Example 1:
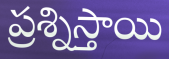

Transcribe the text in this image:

ప్రశ్నిస్తాయి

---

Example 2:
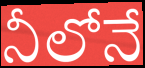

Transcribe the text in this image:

నీలోనే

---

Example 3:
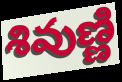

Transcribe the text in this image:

శివుణ్ణి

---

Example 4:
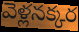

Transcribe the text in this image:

వెళ్లనక్కర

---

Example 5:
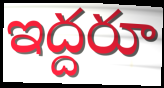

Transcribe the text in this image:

ఇద్దరూ